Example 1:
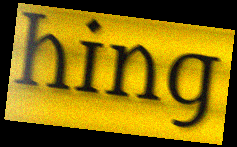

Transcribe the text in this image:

hing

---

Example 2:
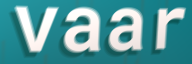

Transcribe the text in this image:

vaar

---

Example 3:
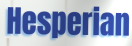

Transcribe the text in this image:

Hesperian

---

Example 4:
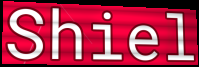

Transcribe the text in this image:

Shiel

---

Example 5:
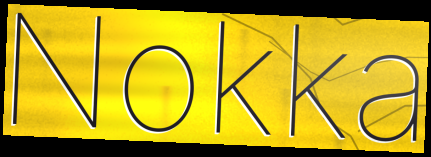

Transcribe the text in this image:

Nokka